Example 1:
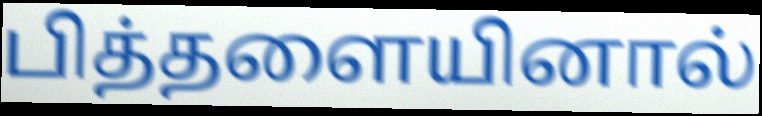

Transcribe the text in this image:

பித்தளையினால்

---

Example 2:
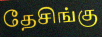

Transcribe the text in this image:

தேசிங்கு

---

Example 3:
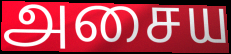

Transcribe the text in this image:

அசைய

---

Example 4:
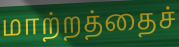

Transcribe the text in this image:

மாற்றத்தைச்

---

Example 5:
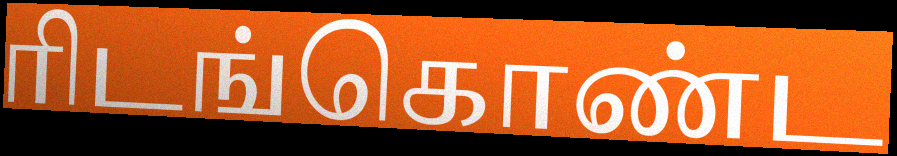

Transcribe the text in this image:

ரிடங்கொண்ட